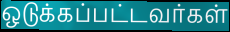
ஒடுக்கப்பட்டவர்கள்